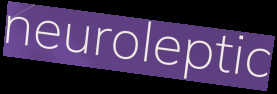
neuroleptic